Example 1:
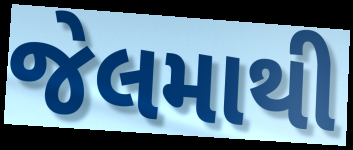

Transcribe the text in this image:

જેલમાથી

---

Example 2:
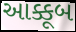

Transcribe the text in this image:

આક્કૂબ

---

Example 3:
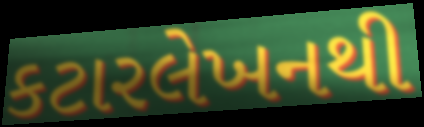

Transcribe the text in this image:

કટારલેખનથી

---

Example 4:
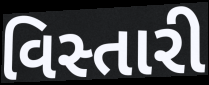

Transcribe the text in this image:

વિસ્તારી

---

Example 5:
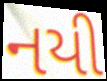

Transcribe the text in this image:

નયી